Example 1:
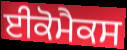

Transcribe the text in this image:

ਈਕੋਮੈਕਸ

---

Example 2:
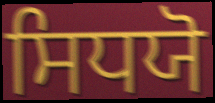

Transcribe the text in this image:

ਸਿਧਯੋ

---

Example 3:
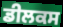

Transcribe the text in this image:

ਡੀਲਕਸ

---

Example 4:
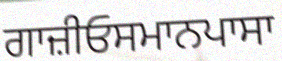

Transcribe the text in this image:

ਗਾਜ਼ੀਓਸਮਾਨਪਾਸਾ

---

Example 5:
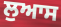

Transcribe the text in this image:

ਲੁਆਸ